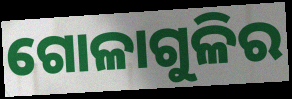
ଗୋଳାଗୁଳିର